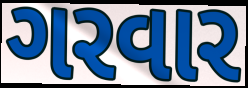
ગરવાર